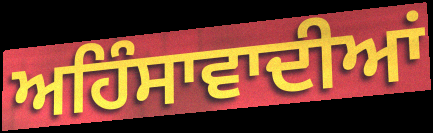
ਅਹਿੰਸਾਵਾਦੀਆਂ